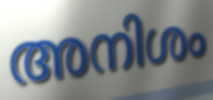
അനിശം